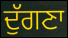
ਦੁੱਗਣਾ